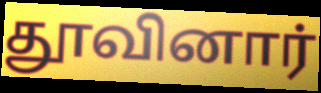
தூவினார்